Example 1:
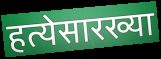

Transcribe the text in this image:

हत्येसारख्या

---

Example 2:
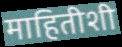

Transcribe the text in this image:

माहितीशी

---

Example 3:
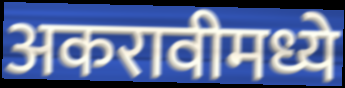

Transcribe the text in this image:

अकरावीमध्ये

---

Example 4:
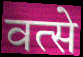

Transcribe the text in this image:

वत्से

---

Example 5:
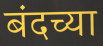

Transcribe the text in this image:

बंदच्या